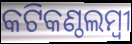
କଟିକଣ୍ଠଲମ୍ବୀ